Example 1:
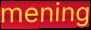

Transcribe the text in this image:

mening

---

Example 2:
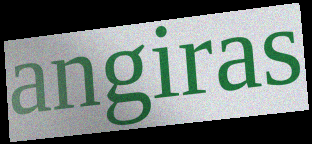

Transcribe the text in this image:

angiras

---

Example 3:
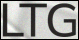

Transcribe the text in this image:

LTG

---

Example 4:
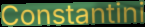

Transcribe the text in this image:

Constantini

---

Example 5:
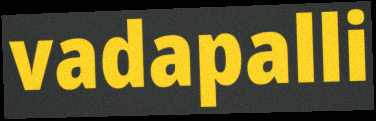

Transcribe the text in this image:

vadapalli